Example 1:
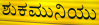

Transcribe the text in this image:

ಶುಕಮುನಿಯು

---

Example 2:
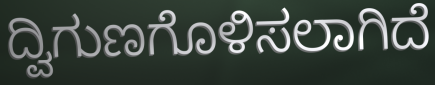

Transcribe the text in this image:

ದ್ವಿಗುಣಗೊಳಿಸಲಾಗಿದೆ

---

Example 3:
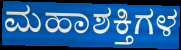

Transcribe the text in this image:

ಮಹಾಶಕ್ತಿಗಳ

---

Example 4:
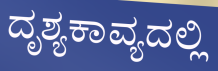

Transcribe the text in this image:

ದೃಶ್ಯಕಾವ್ಯದಲ್ಲಿ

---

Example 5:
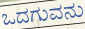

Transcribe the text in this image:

ಒದಗುವನು